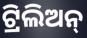
ଟ୍ରିଲିଅନ୍